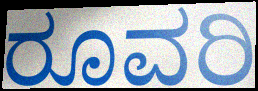
ರೂವರಿ